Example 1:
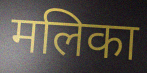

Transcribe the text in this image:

मलिका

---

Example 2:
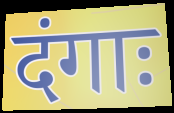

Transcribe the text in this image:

दंगाः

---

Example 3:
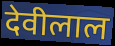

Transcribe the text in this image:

देवीलाल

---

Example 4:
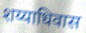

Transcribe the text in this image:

शय्याधिवास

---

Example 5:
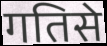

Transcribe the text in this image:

गतिसे